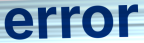
error